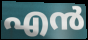
എൻ